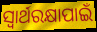
ସ୍ବାର୍ଥରକ୍ଷାପାଇଁ